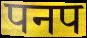
पनप